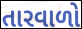
તારવાળો